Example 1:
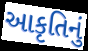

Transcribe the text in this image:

આકૃતિનું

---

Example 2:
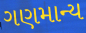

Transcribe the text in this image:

ગણમાન્ય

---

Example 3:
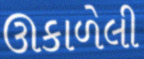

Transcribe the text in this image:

ઊકાળેલી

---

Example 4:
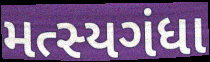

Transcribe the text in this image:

મત્સ્યગંધા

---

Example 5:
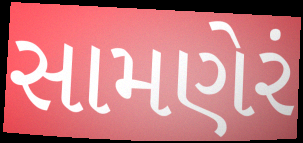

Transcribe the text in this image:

સામણેરં